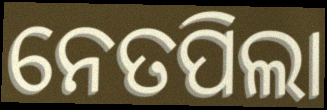
ନେତପିଲା